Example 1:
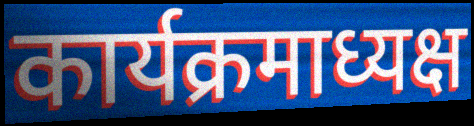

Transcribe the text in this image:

कार्यक्रमाध्यक्ष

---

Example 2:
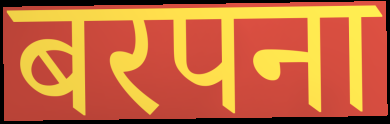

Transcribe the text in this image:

बरपना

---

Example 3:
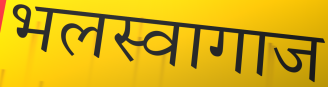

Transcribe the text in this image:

भलस्वागाज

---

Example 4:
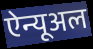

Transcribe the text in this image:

ऐन्यूअल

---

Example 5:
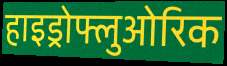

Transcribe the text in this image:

हाइड्रोफ्लुओरिक